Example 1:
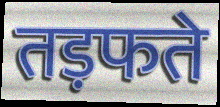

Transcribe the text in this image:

तड़फते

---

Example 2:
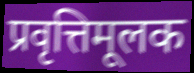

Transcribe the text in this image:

प्रवृत्तिमूलक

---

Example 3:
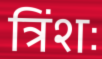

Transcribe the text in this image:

त्रिंशः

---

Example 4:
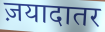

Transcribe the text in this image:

ज़यादातर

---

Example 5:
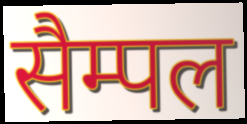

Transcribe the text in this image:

सैम्पल